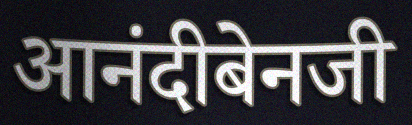
आनंदीबेनजी